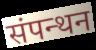
संपन्थन